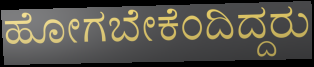
ಹೋಗಬೇಕೆಂದಿದ್ದರು